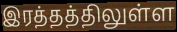
இரத்தத்திலுள்ள